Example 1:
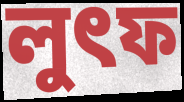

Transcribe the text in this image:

লুৎফ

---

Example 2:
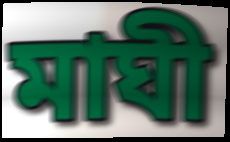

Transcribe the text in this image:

মাঘী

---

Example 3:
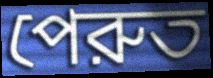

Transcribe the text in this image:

পেরুত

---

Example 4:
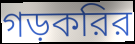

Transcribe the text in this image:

গড়করির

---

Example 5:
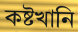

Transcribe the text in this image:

কষ্টখানি